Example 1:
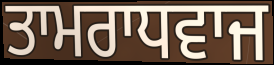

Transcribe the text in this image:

ਤਾਮਰਾਧਵਾਜ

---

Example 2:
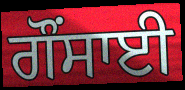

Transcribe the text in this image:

ਗੌਂਸਾਈ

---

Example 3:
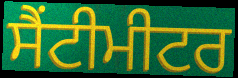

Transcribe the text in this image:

ਸੈਂਟੀਮੀਟਰ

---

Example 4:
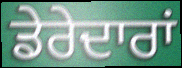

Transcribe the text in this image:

ਡੇਰੇਦਾਰਾਂ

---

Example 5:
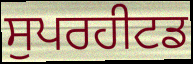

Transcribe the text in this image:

ਸੁਪਰਹੀਟਡ